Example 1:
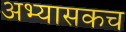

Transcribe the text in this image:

अभ्यासकच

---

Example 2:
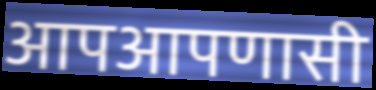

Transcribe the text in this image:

आपआपणासी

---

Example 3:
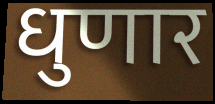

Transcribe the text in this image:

धुणार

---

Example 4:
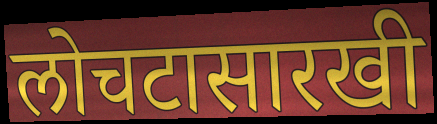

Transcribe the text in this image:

लोचटासारखी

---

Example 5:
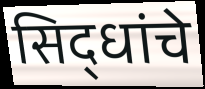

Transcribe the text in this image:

सिद्धांचे